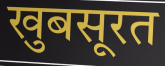
खुबसूरत